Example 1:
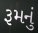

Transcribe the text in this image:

રૂમનું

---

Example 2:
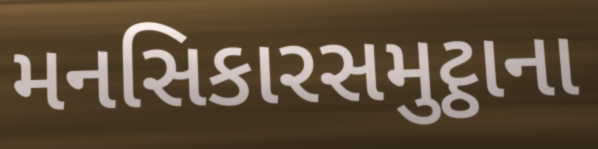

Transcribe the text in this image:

મનસિકારસમુટ્ઠાના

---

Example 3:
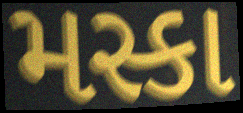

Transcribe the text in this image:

મસ્કા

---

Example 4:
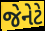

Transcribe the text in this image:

જેનેટે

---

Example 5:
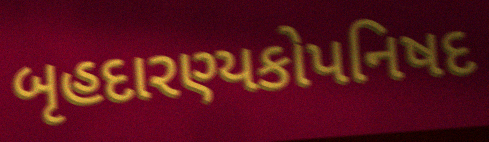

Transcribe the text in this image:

બૃહદારણ્યકોપનિષદ